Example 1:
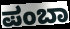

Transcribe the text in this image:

ಪಂಬಾ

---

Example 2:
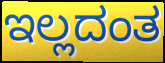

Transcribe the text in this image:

ಇಲ್ಲದಂತ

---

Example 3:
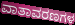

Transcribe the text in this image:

ವಾತಾವರಣಗಳ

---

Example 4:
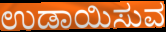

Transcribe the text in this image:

ಉಡಾಯಿಸುವ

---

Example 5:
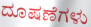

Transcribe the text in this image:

ದೂಷಣೆಗಳು